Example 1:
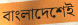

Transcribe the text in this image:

বাংলাদেশেই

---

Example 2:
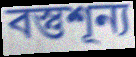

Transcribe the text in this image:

বস্তুশূন্য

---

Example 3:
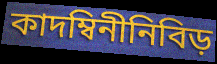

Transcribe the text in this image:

কাদম্বিনীনিবিড়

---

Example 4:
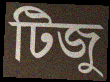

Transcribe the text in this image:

টিজু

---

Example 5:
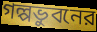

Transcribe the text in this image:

গল্পভুবনের